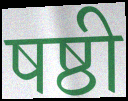
षष्ठी